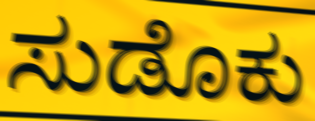
ಸುಡೊಕು